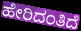
ಹೇರಿದಂತಿದೆ